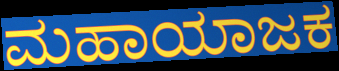
ಮಹಾಯಾಜಕ